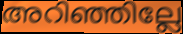
അറിഞ്ഞില്ലേ